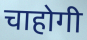
चाहोगी